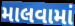
માલવામાં